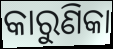
କାରୁଣିକା